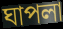
ঘাপলা